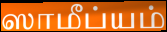
ஸாமீப்யம்